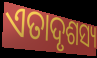
ଏତାଦୃଶସ୍ୟ